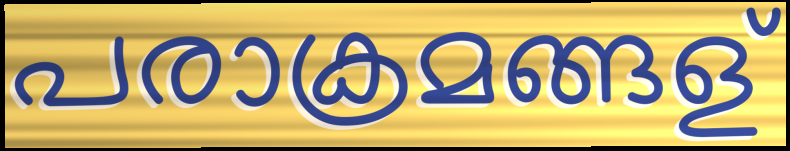
പരാക്രമങ്ങള്